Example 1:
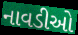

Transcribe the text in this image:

નાવડીઓ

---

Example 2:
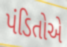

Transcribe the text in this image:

પંડિતોએ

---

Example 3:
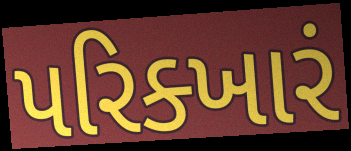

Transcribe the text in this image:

પરિક્ખારં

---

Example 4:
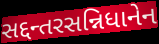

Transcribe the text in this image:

સદ્દન્તરસન્નિધાનેન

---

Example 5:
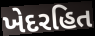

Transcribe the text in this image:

ખેદરહિત